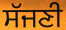
ਸੱਜਣੀ